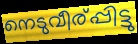
നെടുവീര്പ്പിട്ടു